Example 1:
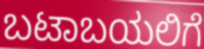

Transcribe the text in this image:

ಬಟಾಬಯಲಿಗೆ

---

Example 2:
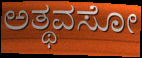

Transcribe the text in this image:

ಅತ್ಥವಸೋ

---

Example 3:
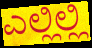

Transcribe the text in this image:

ಎಲ್ಲಿಲ್ಲಿ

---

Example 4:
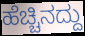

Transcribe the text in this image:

ಹೆಚ್ಚಿನದ್ದು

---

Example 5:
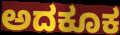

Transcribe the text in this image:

ಅದಕೂಕ